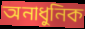
অনাধুনিক